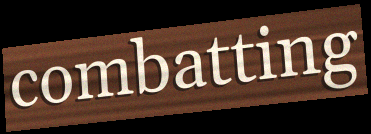
combatting